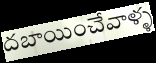
దబాయించేవాళ్ళ